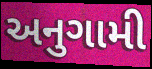
અનુગામી